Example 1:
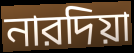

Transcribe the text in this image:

নারদিয়া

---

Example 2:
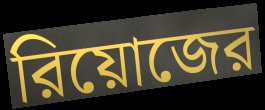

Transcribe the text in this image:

রিয়োজের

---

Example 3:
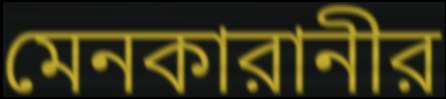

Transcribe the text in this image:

মেনকারানীর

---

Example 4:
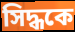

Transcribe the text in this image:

সিদ্ধকে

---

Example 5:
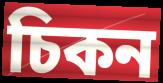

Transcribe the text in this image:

চিকন